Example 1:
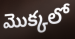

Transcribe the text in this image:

మొక్కలో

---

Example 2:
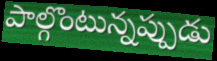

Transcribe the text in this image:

పాల్గొంటున్నప్పుడు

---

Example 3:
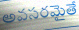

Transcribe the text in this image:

అవసరమైతే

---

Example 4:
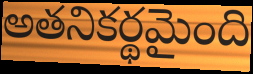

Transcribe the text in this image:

అతనికర్థమైంది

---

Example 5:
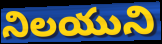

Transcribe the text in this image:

నిలయుని